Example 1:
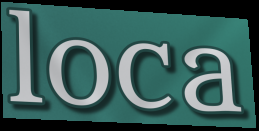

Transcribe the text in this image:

loca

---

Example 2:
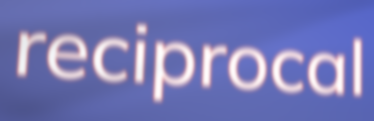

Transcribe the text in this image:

reciprocal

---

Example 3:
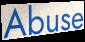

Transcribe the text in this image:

Abuse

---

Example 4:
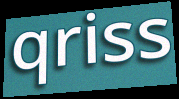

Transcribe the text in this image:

qriss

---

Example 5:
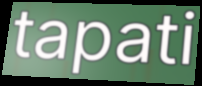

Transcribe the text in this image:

tapati